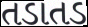
તડાતડ